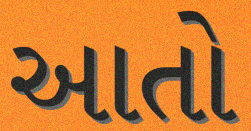
આતો